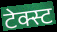
टेक्स्ट